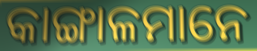
କାଙ୍ଗାଳମାନେ